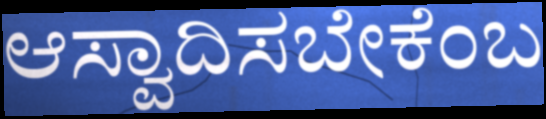
ಆಸ್ವಾದಿಸಬೇಕೆಂಬ